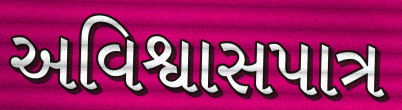
અવિશ્વાસપાત્ર